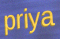
priya